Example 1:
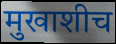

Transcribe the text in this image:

मुखाशीच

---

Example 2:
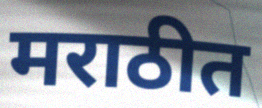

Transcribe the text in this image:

मराठीत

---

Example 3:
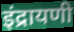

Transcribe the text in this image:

इंद्रायणी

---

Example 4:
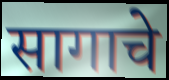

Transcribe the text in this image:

सागाचे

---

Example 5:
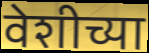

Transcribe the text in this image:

वेशीच्या